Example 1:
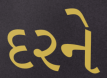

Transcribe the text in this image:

દરને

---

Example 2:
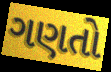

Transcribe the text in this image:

ગણતો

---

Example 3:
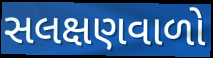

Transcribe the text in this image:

સલક્ષણવાળો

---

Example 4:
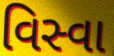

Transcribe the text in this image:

વિસ્વા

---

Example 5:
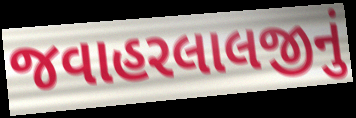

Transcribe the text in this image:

જવાહરલાલજીનું